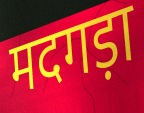
मदगड़ा